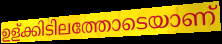
ഉള്ക്കിടിലത്തോടെയാണ്